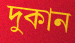
দুকান